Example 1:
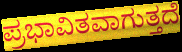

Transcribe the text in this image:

ಪ್ರಭಾವಿತವಾಗುತ್ತದೆ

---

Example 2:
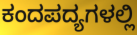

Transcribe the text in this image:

ಕಂದಪದ್ಯಗಳಲ್ಲಿ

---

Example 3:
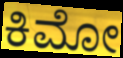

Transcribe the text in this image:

ಕಿಮೋ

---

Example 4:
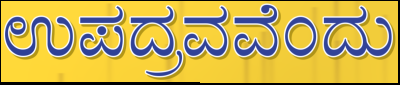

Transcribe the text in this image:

ಉಪದ್ರವವೆಂದು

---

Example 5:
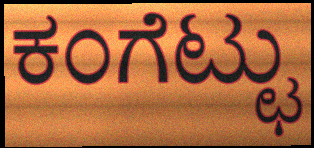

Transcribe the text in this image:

ಕಂಗೆಟ್ಟು